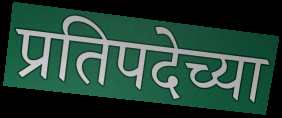
प्रतिपदेच्या